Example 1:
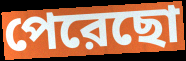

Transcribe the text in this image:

পেরেছো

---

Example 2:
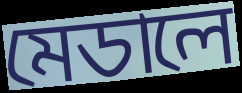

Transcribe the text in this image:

মেডালে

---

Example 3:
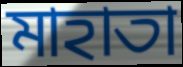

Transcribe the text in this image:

মাহাতা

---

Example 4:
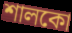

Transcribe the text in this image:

শালকো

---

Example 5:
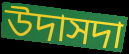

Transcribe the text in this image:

উদাসদা